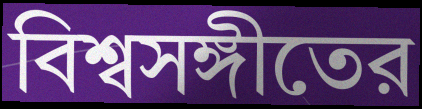
বিশ্বসঙ্গীতের